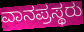
ವಾನಪ್ರಸ್ಥರು